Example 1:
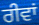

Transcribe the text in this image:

ਰੀਵਾਂ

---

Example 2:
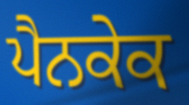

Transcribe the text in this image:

ਪੈਨਕੇਕ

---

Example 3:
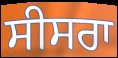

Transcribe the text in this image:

ਸੀਸਰਾ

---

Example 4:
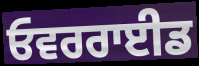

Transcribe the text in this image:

ਓਵਰਰਾਈਡ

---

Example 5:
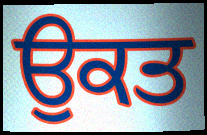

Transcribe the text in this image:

ਉਕਤ